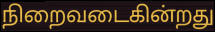
நிறைவடைகின்றது